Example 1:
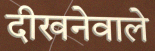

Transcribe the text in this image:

दीखनेवाले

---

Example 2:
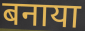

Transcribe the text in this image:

बनाया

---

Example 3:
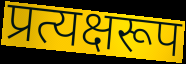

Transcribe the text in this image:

प्रत्यक्षरूप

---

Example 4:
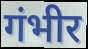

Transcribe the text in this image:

गंभीर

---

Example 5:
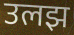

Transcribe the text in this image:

उलझ